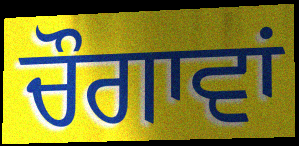
ਚੌਗਾਵਾਂ